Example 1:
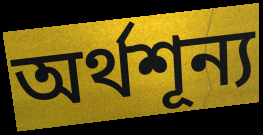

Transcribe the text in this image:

অর্থশূন্য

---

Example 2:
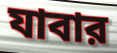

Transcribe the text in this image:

যাবার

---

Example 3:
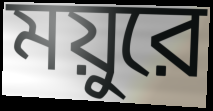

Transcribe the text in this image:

ময়ুরে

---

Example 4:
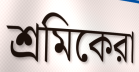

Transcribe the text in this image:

শ্রমিকেরা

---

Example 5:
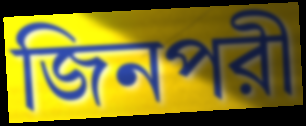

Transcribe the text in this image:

জিনপরী